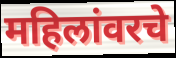
महिलांवरचे